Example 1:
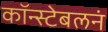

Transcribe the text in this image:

कॉन्स्टेबलनं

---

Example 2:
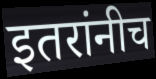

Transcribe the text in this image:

इतरांनीच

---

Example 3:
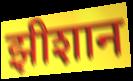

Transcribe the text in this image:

झीशान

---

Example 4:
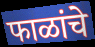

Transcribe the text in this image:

फाळांचे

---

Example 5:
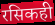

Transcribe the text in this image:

रसिकही